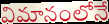
విమానంలోనే